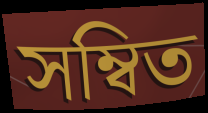
সম্বিত